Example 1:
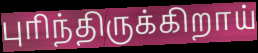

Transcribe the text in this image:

புரிந்திருக்கிறாய்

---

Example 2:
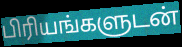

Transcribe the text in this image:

பிரியங்களுடன்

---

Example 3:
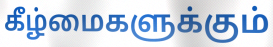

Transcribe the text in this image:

கீழ்மைகளுக்கும்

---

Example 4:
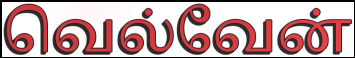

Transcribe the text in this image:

வெல்வேன்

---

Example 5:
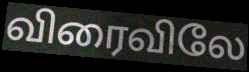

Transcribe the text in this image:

விரைவிலே